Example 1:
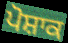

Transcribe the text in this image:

ਪੋਸ਼ਾਕ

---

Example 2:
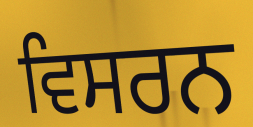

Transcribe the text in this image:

ਵਿਸਰਨ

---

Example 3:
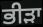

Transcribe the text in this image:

ਭੀੜਾ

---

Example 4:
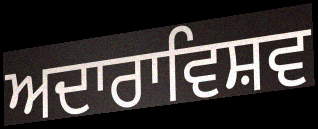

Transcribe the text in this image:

ਅਦਾਰਾਵਿਸ਼ਵ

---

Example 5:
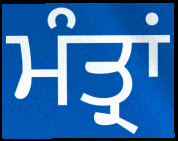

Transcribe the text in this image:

ਮੰਤ੍ਰਾਂ